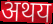
अथय